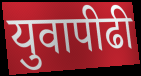
युवापीढी